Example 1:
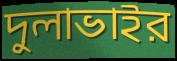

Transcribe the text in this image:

দুলাভাইর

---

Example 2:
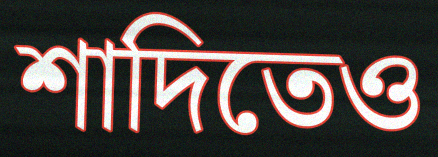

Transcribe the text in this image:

শাদিতেও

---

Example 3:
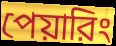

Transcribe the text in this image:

পেয়ারিং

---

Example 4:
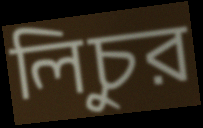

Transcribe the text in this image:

লিচুর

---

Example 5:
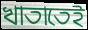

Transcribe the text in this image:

খাতাতেই